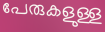
പേരുകളുള്ള